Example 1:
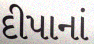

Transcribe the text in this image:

દીપાનાં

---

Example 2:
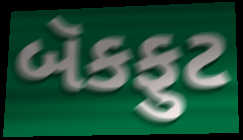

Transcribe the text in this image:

બૅકફુટ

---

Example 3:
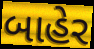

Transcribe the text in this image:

બાહેર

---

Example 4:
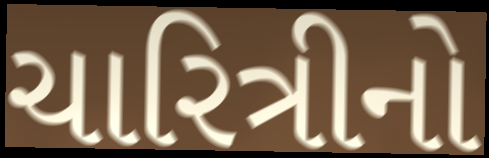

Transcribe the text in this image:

ચારિત્રીનો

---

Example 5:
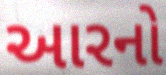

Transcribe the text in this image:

આરનો